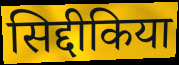
सिद्दीकिया